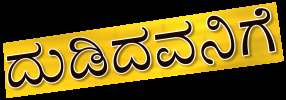
ದುಡಿದವನಿಗೆ